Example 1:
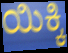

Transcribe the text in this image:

ಯಿಕ್ಕಿ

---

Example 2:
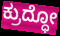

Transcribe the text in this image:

ಕ್ರುದ್ಧೋ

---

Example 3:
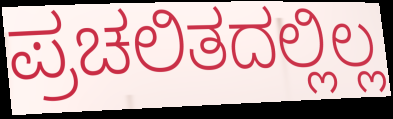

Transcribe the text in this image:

ಪ್ರಚಲಿತದಲ್ಲಿಲ್ಲ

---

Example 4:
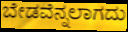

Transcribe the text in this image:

ಬೇಡವೆನ್ನಲಾಗದು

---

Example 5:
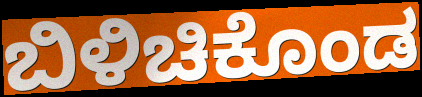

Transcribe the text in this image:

ಬಿಳಿಚಿಕೊಂಡ